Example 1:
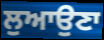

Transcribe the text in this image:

ਲੁਆਉਣਾ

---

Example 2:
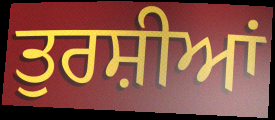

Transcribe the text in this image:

ਤੁਰਸ਼ੀਆਂ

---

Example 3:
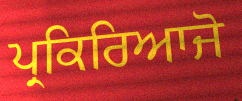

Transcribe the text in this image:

ਪ੍ਰਕਿਰਿਆਜੋ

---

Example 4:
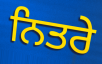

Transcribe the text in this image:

ਨਿਤਰੇ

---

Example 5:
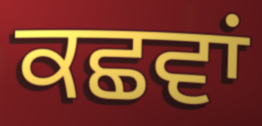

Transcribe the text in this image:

ਕਛਵਾਂ